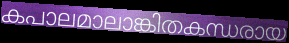
കപാലമാലാങ്കിതകന്ധരായ